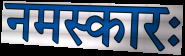
नमस्कारः